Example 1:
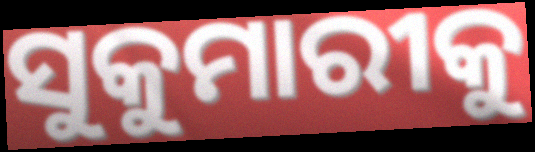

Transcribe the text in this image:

ସୁକୁମାରୀକୁ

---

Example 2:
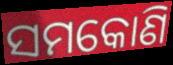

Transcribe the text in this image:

ସମକୋଣି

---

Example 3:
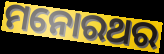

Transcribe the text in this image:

ମନୋରଥର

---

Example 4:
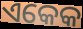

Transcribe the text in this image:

ଏକେକ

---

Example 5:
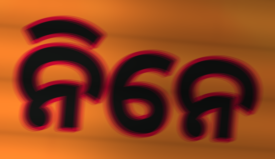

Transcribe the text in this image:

ନିନେ